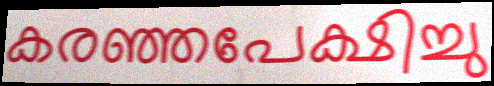
കരഞ്ഞപേക്ഷിച്ചു